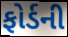
ફોર્ડની